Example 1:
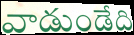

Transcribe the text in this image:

వాడుండేది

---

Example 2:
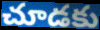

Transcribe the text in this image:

చూడకు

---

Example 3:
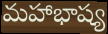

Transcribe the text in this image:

మహాభాష్య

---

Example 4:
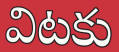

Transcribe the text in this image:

విటకు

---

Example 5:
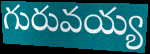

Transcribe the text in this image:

గురువయ్య